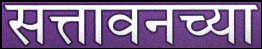
सत्तावनच्या